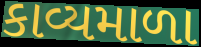
કાવ્યમાળા